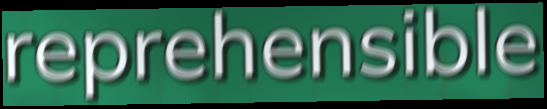
reprehensible